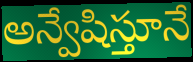
అన్వేషిస్తూనే